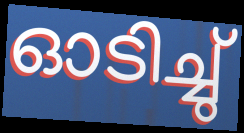
ഓടിച്ചു്